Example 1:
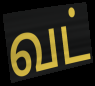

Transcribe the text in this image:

வட்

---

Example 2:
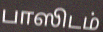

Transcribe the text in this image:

பாஸிடம்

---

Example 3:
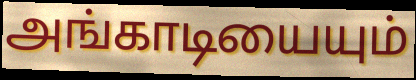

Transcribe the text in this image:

அங்காடியையும்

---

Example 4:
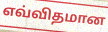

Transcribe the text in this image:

எவ்விதமான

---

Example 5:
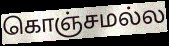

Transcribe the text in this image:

கொஞ்சமல்ல